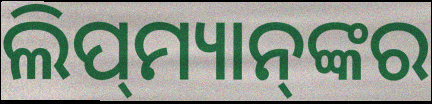
ଲିପ୍‌ମ୍ୟାନ୍‌ଙ୍କର